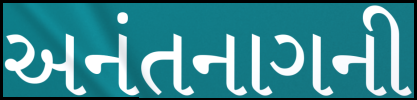
અનંતનાગની